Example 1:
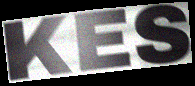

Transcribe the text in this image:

KES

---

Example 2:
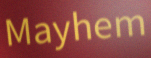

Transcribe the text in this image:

Mayhem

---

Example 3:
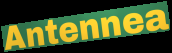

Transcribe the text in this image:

Antennea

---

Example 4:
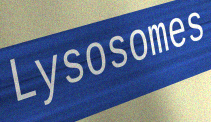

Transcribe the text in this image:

Lysosomes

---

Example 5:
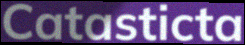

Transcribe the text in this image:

Catasticta